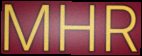
MHR